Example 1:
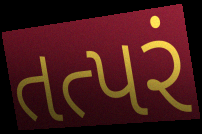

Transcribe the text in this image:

તત્પરં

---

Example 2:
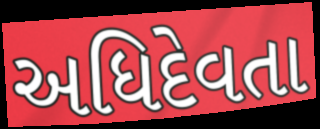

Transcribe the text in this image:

અધિદેવતા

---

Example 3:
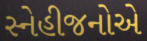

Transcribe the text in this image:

સ્નેહીજનોએ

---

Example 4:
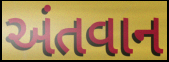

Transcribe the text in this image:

અંતવાન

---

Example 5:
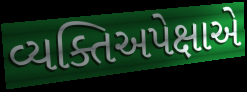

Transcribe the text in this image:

વ્યક્તિઅપેક્ષાએ